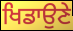
ਖਿਡਾਉਣੇ